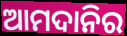
ଆମଦାନିର